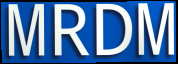
MRDM